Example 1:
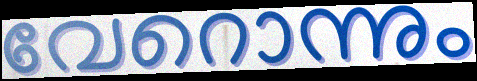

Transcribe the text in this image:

വേറൊന്നും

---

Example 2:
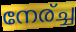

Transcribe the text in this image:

നേര്ച്ച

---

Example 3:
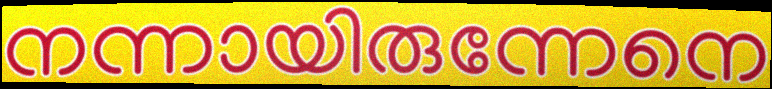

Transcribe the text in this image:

നന്നായിരുന്നേനെ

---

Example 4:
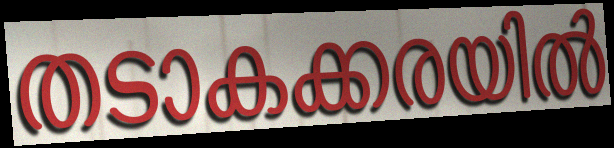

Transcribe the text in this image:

തടാകക്കരയിൽ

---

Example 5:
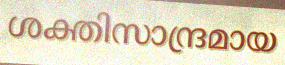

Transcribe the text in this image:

ശക്തിസാന്ദ്രമായ